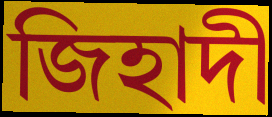
জিহাদী